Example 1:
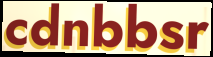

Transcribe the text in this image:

cdnbbsr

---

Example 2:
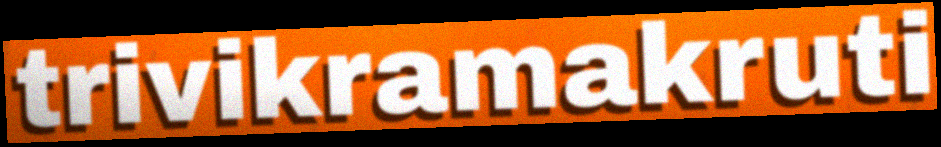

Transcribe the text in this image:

trivikramakruti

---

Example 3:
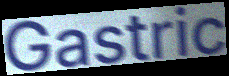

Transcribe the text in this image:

Gastric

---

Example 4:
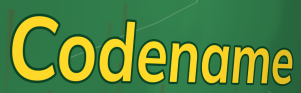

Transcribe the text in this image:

Codename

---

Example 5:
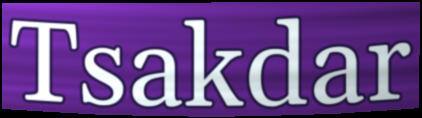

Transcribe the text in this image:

Tsakdar